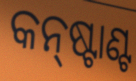
କନ୍‌ଷ୍ଟାଣ୍ଟ